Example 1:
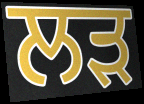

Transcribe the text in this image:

ਲੜ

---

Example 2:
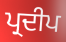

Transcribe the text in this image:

ਪ੍ਰਦੀਪ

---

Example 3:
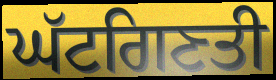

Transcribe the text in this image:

ਘੱਟਗਿਣਤੀ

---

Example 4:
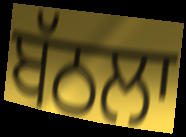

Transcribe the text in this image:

ਬੱਠਲਾ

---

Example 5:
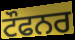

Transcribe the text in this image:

ਟੌਫਨਰ